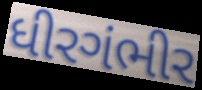
ધીરગંભીર